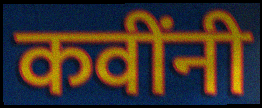
कवींनी